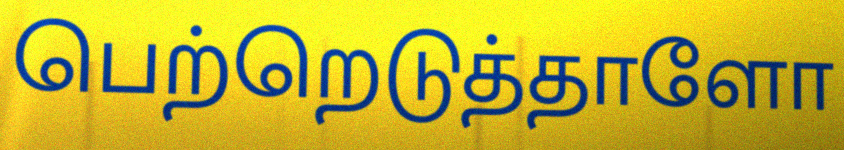
பெற்றெடுத்தாளோ